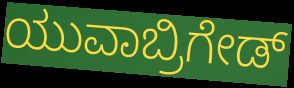
ಯುವಾಬ್ರಿಗೇಡ್